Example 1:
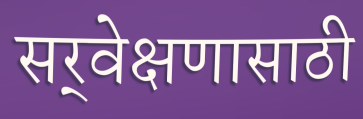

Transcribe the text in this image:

सर्वेक्षणासाठी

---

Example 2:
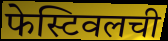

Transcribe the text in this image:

फेस्टिवलची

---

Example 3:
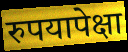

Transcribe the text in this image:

रुपयापेक्षा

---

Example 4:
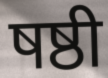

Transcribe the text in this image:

षष्ठी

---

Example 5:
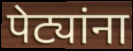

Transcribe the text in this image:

पेट्यांना